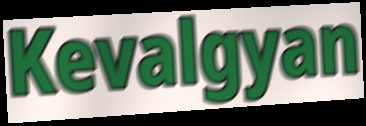
Kevalgyan